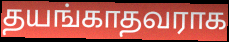
தயங்காதவராக